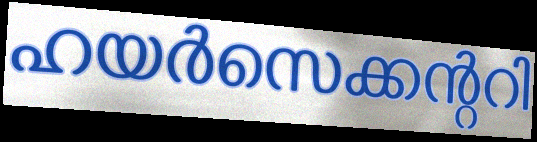
ഹയർസെക്കന്ററി